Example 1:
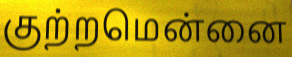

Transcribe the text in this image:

குற்றமென்னை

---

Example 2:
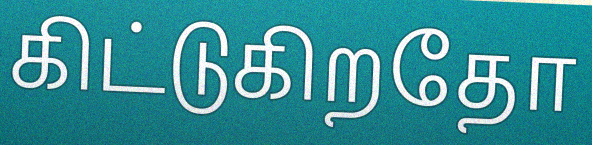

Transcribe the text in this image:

கிட்டுகிறதோ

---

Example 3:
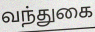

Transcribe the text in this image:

வந்துகை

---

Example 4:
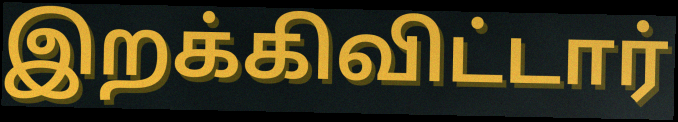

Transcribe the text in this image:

இறக்கிவிட்டார்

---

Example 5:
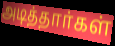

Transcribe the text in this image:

அடித்தார்கள்